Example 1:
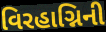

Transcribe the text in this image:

વિરહાગ્નિની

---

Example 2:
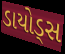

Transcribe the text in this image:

ડાયોડ્સ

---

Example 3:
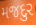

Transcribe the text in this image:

મજદુર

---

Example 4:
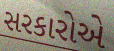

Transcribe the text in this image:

સરકારોએ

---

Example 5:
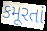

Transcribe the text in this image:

કમૂરતાં